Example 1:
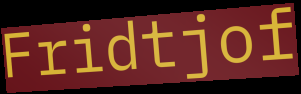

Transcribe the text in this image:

Fridtjof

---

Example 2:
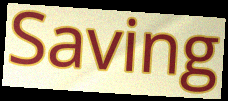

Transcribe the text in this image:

Saving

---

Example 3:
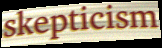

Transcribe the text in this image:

skepticism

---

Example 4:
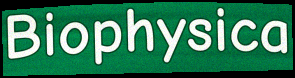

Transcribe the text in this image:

Biophysica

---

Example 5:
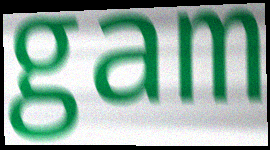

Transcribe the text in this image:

gam